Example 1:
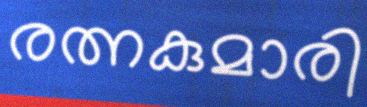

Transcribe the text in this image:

രത്നകുമാരി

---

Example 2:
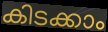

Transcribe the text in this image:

കിടക്കാം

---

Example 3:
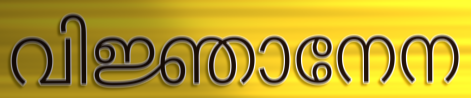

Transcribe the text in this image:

വിജ്ഞാനേന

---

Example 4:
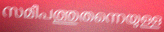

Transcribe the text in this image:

സമീപത്തുതന്നെയുള്ള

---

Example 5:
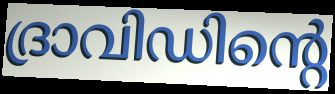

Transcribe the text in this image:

ദ്രാവിഡിന്റെ